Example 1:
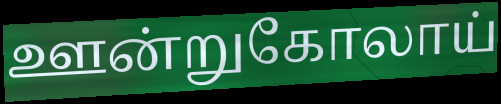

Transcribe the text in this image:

ஊன்றுகோலாய்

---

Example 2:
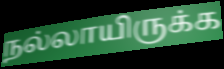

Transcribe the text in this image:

நல்லாயிருக்க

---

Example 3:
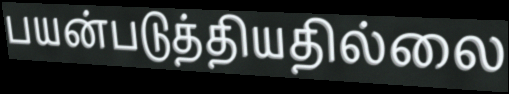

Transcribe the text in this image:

பயன்படுத்தியதில்லை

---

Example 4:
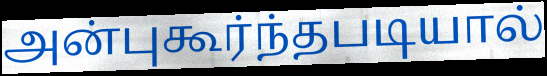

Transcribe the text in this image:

அன்புகூர்ந்தபடியால்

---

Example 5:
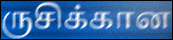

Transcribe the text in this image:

ருசிக்கான